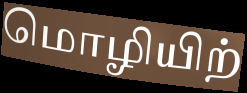
மொழியிற்